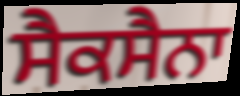
ਸੈਕਸੈਨਾ